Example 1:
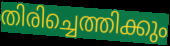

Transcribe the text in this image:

തിരിച്ചെത്തിക്കും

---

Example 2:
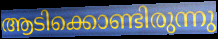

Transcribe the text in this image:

ആടിക്കൊണ്ടിരുന്നു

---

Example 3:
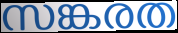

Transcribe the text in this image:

സങ്കരത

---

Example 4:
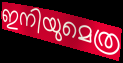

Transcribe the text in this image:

ഇനിയുമെത്ര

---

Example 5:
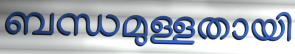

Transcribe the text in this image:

ബന്ധമുള്ളതായി